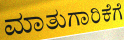
ಮಾತುಗಾರಿಕೆಗೆ